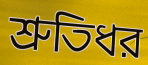
শ্রুতিধর